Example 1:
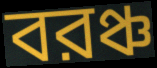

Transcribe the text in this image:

বরঞ্চ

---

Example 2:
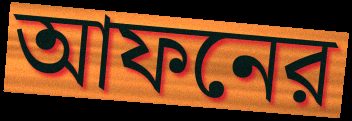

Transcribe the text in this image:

আফনের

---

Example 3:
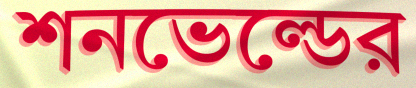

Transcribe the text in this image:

শনভেল্ডের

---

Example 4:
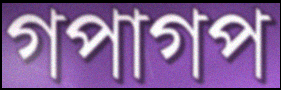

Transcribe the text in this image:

গপাগপ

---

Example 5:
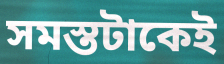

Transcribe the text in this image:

সমস্তটাকেই